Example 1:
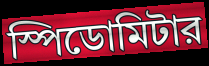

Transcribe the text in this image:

স্পিডোমিটার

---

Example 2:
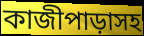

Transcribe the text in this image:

কাজীপাড়াসহ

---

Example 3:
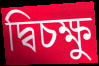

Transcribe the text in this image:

দ্বিচক্ষু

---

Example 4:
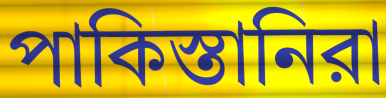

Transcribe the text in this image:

পাকিস্তানিরা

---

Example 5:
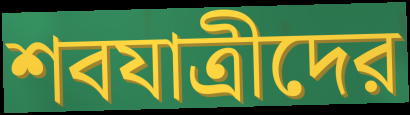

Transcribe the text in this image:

শবযাত্রীদের